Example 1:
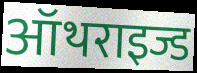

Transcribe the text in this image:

ऑथराइज्ड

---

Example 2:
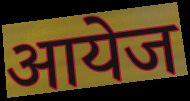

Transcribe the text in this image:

आयेज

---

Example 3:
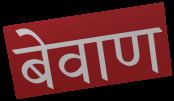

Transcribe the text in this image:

बेवाण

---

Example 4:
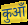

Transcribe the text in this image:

कुआँ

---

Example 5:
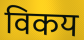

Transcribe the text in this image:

विकय